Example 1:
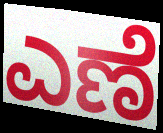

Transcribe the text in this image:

ಎಣೆ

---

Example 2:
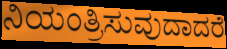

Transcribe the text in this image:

ನಿಯಂತ್ರಿಸುವುದಾದರೆ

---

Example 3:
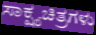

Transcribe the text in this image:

ಸಾಕ್ಷ್ಯಚಿತ್ರಗಳು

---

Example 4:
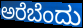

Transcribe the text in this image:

ಅರೆಬೆಂದು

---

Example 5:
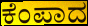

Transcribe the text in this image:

ಕೆಂಪಾದ